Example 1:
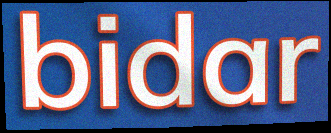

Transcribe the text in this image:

bidar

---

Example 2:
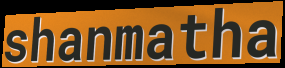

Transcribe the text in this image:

shanmatha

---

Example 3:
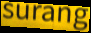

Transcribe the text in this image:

surang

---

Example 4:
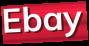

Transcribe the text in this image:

Ebay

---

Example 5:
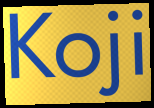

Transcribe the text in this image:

Koji